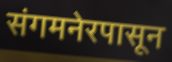
संगमनेरपासून